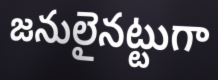
జనులైనట్టుగా